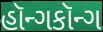
હૉન્ગકૉન્ગ